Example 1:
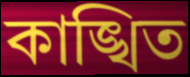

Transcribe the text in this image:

কাঙ্খিত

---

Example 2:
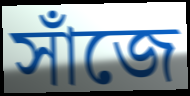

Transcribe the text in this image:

সাঁজে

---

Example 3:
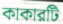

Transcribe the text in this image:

কাকারটি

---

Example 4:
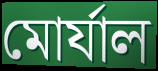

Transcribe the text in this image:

মোর্যাল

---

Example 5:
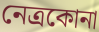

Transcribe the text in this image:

নেত্রকোনা